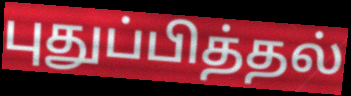
புதுப்பித்தல்